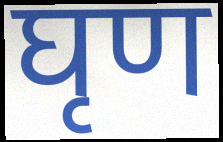
घृण